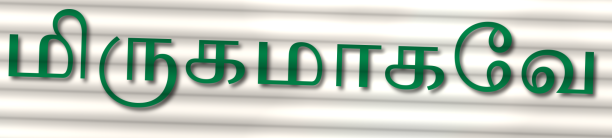
மிருகமாகவே